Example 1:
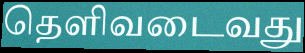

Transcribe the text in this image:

தெளிவடைவது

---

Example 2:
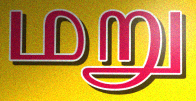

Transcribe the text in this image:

மறு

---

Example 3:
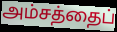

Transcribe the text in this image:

அம்சத்தைப்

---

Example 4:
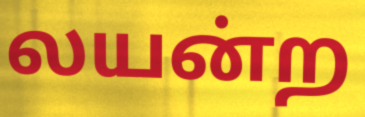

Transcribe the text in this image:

லயன்ற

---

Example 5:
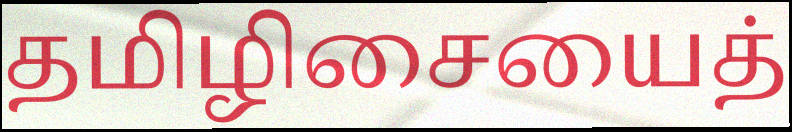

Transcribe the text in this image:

தமிழிசையைத்